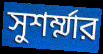
সুশর্ম্মার